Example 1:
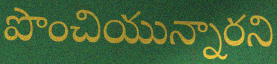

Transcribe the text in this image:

పొంచియున్నారని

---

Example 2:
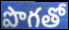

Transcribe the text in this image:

పొగతో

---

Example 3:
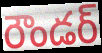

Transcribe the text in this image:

రౌండర్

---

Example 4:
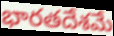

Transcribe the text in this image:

భారతదేశమే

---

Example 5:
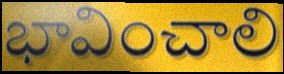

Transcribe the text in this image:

భావించాలి